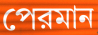
পেরমান